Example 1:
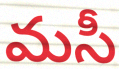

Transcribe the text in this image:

మసీ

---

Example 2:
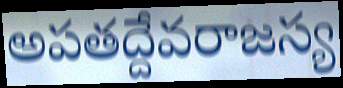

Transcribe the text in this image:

అపతద్దేవరాజస్య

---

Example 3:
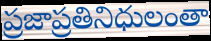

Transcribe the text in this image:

ప్రజాప్రతినిధులంతా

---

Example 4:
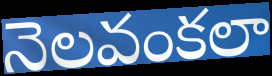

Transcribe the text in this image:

నెలవంకలా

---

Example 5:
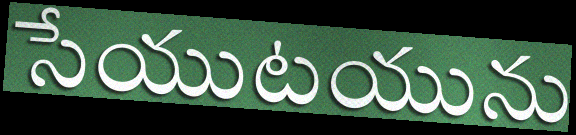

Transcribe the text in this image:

సేయుటయును